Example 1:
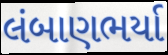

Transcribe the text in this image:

લંબાણભર્યા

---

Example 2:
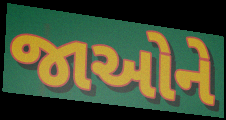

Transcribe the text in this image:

જાઓને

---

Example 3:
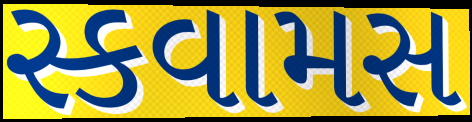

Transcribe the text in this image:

સ્કવામસ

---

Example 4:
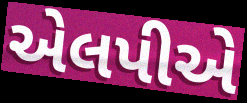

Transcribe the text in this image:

એલપીએ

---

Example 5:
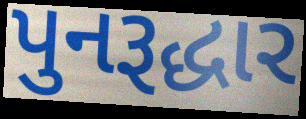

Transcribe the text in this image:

પુનરૂદ્ધાર